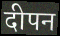
दीपन